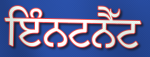
ਇੰਨਟਨੈੱਟ